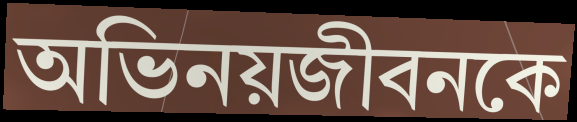
অভিনয়জীবনকে